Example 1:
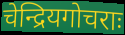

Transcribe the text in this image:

चेन्द्रियगोचराः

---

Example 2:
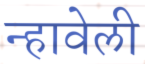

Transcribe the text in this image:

न्हावेली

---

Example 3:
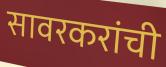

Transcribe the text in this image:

सावरकरांची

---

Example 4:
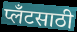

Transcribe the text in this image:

प्लँटसाठी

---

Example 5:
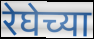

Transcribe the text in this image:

रेघेच्या